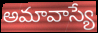
అమావాస్యే